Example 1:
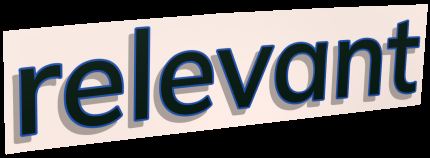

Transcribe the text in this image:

relevant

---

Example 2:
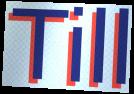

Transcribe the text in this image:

Till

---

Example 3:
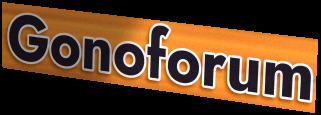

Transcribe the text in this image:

Gonoforum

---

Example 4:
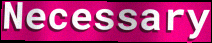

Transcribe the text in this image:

Necessary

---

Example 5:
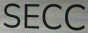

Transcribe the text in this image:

SECC